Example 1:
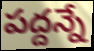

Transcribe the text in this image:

పద్దన్నే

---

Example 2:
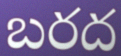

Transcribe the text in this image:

బరద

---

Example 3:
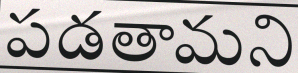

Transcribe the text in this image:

పడతామని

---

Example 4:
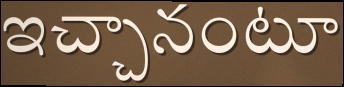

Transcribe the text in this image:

ఇచ్చానంటూ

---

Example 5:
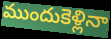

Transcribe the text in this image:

ముందుకెళ్లినా